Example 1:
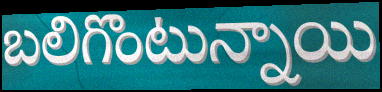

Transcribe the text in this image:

బలిగొంటున్నాయి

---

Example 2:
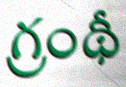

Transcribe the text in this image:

గ్రంథీ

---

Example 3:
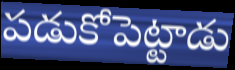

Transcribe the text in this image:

పడుకోపెట్టాడు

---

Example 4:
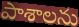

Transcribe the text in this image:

పాశాలను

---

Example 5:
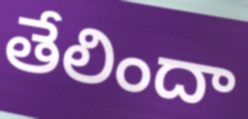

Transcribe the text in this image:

తేలిందా